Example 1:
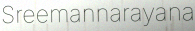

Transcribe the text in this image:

Sreemannarayana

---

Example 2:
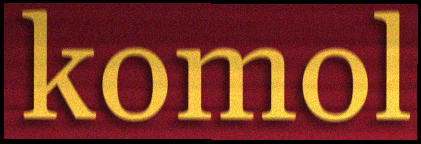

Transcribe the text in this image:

komol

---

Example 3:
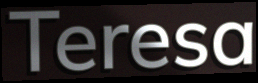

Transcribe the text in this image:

Teresa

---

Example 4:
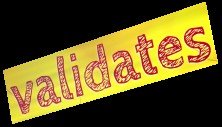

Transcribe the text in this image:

validates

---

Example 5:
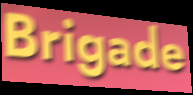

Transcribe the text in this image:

Brigade